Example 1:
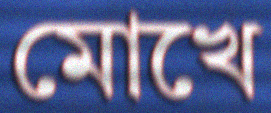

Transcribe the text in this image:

মোখে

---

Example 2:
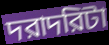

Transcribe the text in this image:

দরাদরিটা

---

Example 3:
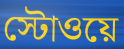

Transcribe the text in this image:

স্টোওয়ে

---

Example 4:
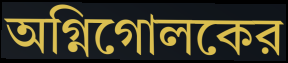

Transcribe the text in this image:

অগ্নিগোলকের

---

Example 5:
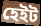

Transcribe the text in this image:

হেইট